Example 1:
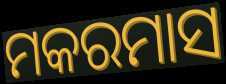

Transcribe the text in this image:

ମକରମାସ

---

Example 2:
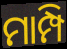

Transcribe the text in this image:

ମାମ୍ପି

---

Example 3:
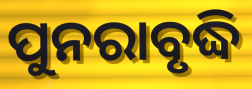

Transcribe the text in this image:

ପୁନରାବୃଦ୍ଧି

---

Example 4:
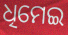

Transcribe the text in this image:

ଧିମେଇ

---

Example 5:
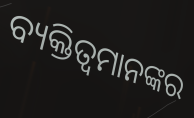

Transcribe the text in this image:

ବ୍ୟକ୍ତିତ୍ୱମାନଙ୍କର